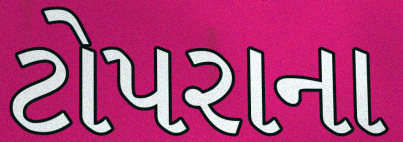
ટોપરાના